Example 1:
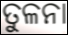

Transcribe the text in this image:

ତୁଳନା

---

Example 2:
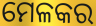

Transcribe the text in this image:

ମେଳକର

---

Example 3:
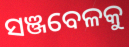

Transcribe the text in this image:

ସଞ୍ଜବେଳକୁ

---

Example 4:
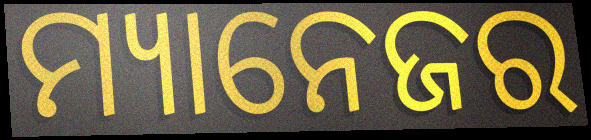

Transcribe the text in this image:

ମ୍ୟାନେଜର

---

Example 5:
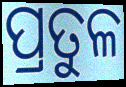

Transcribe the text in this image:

ପ୍ରତୁଳ